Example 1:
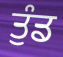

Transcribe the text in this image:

ਤੁੰਡ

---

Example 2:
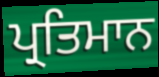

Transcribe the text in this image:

ਪ੍ਰਤਿਮਾਨ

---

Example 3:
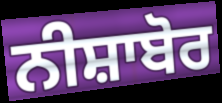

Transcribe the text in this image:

ਨੀਸ਼ਾਬੋਰ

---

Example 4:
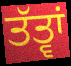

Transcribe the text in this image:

ਤੱਤ੍ਵਾਂ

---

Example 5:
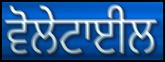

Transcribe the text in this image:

ਵੋਲੇਟਾਈਲ